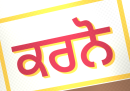
ਕਰਨੋ